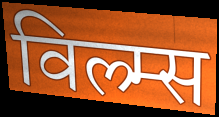
विल्म्स